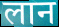
लान